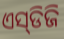
ଏସ୍‌ଡିଜି